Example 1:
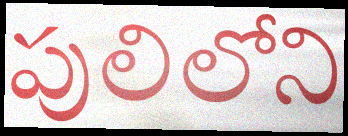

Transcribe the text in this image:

పులిలోని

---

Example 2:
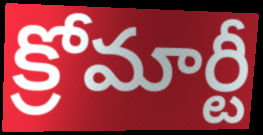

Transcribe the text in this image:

క్రోమార్టీ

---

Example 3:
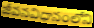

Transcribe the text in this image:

జీవనవిధానంలోని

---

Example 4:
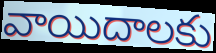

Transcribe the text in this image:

వాయిదాలకు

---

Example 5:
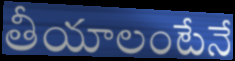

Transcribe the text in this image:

తీయాలంటేనే